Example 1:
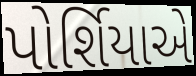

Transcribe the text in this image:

પોર્શિયાએ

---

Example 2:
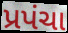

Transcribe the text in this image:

પ્રપંચા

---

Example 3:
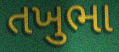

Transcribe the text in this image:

તખુભા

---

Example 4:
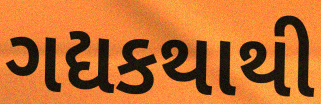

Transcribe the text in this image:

ગદ્યકથાથી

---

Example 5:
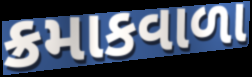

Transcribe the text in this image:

ક્રમાકવાળા